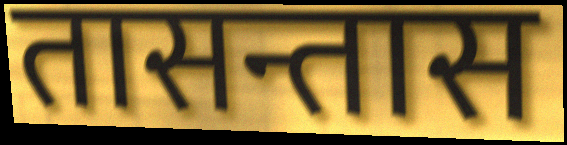
तासन्तास